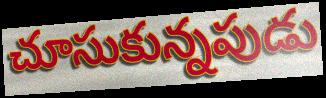
చూసుకున్నపుడు